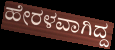
ಹೇರಳವಾಗಿದ್ದ